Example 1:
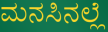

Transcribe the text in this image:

ಮನಸಿನಲ್ಲೆ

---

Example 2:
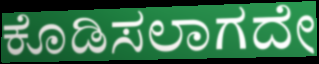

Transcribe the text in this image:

ಕೊಡಿಸಲಾಗದೇ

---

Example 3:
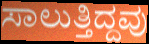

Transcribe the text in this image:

ಸಾಲುತ್ತಿದ್ದವು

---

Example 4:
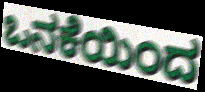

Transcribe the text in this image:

ಒನಕೆಯಿಂದ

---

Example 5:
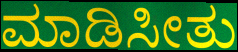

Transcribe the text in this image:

ಮಾಡಿಸೀತು